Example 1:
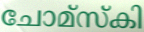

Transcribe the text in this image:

ചോമ്സ്കി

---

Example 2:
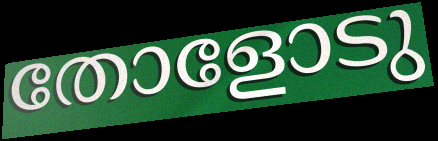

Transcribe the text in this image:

തോളോടു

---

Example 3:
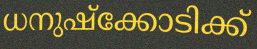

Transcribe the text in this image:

ധനുഷ്ക്കോടിക്ക്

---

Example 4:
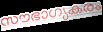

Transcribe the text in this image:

സൗഭാഗ്യകരം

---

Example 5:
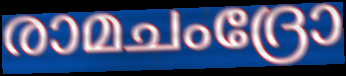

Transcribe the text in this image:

രാമചംദ്രോ